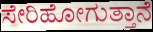
ಸೇರಿಹೋಗುತ್ತಾನೆ